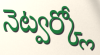
నెట్వర్క్లో